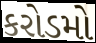
કરોડમો